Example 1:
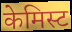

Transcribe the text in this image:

केमिस्ट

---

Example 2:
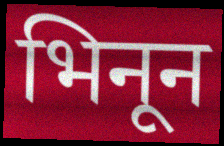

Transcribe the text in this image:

भिनून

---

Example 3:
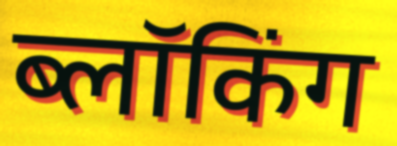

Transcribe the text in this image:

ब्लॉकिंग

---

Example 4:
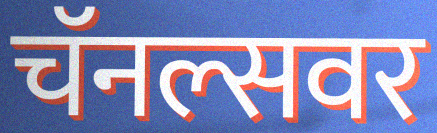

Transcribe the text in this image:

चॅनल्सवर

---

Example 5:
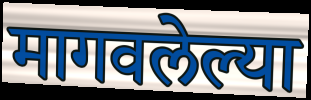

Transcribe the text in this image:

मागवलेल्या